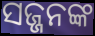
ସଜ୍ଜନଙ୍କ